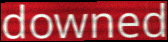
downed